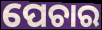
ପେଚାର